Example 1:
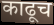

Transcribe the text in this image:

काढूच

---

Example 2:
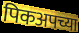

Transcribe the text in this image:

पिकअपच्या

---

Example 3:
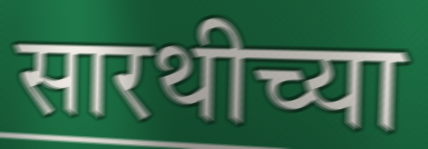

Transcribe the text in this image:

सारथीच्या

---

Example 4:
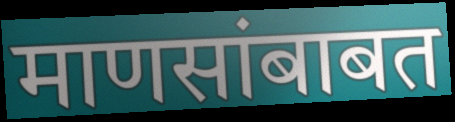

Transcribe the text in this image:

माणसांबाबत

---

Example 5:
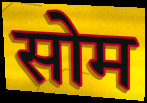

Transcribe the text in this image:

सोम